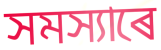
সমস্যাৰে